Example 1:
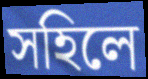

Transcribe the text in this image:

সহিলে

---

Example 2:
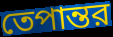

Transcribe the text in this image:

তেপান্তর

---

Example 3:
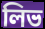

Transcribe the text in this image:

লিভ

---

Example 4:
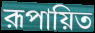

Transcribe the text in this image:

রূপায়িত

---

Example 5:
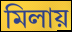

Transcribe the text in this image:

মিলায়